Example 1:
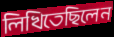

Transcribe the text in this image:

লিখিতেছিলেন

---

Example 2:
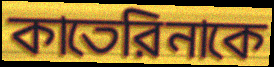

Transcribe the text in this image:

কাতেরিনাকে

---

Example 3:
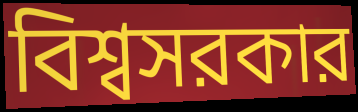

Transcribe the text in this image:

বিশ্বসরকার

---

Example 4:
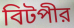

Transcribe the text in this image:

বিটপীর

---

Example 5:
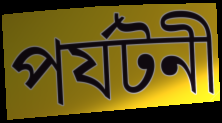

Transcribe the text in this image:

পর্যটনী